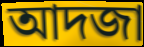
আদজা